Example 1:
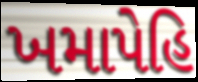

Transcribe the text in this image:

ખમાપેહિ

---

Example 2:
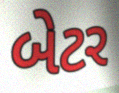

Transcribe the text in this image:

બેટર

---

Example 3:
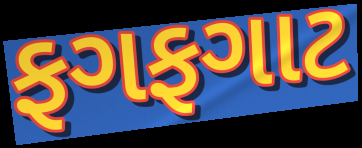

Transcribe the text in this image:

ફગફગાટ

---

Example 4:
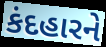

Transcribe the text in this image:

કંદહારને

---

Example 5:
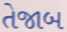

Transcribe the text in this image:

તેજાબ